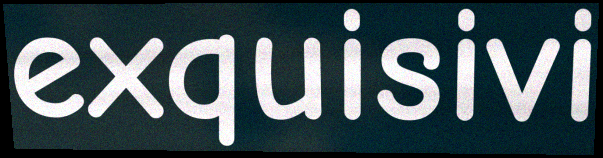
exquisivi